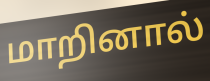
மாறினால்